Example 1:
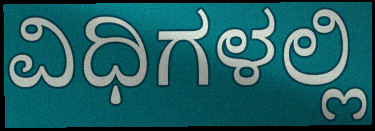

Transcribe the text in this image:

ವಿಧಿಗಳಲ್ಲಿ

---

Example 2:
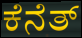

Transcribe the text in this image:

ಕೆನೆತ್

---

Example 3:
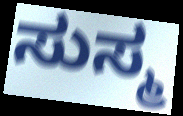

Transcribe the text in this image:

ಸುಸ್ಮ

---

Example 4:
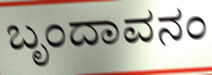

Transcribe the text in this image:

ಬೃಂದಾವನಂ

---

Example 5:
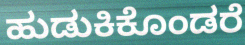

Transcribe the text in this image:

ಹುಡುಕಿಕೊಂಡರೆ